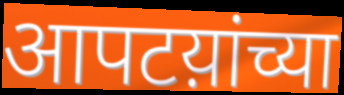
आपटय़ांच्या